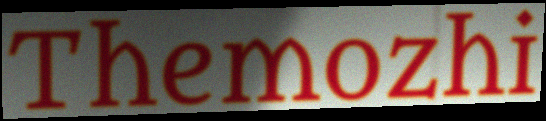
Themozhi